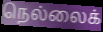
நெல்லைக்